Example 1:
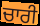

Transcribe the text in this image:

ਚਾਰੀ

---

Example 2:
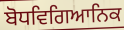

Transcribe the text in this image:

ਬੋਧਵਿਗਿਆਨਿਕ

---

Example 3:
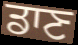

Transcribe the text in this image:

ਡਾਣ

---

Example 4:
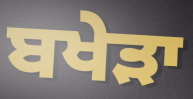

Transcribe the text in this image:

ਬਖੇੜਾ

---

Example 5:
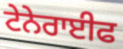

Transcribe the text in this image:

ਟੇਨੇਰਾਈਫ